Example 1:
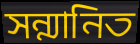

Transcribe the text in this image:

সন্মানিত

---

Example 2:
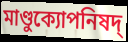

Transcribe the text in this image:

মাণ্ডুক্যোপনিষদ্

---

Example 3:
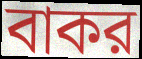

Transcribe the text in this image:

বাকর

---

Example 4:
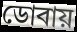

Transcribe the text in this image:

ডোবায়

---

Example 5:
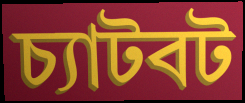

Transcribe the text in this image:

চ্যাটবট